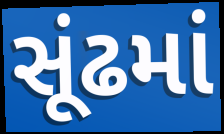
સૂંઢમાં